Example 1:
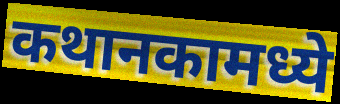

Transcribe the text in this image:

कथानकामध्ये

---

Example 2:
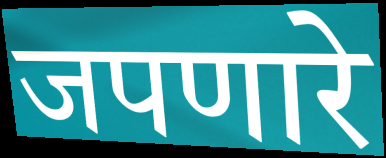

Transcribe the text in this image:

जपणारे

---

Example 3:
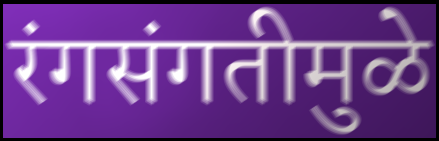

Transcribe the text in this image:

रंगसंगतीमुळे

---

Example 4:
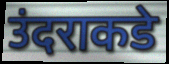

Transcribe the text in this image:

उंदराकडे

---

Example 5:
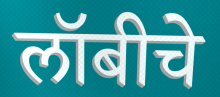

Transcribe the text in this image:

लॉबीचे